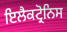
ਇਲੈਕਟ੍ਰੋਨਿਸ